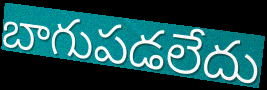
బాగుపడలేదు